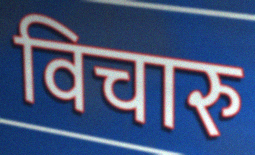
विचारु